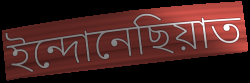
ইন্দোনেছিয়াত